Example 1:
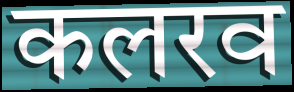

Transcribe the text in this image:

कलरव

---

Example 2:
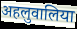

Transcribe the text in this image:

अहलुवालिया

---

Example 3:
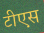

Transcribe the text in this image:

टीएस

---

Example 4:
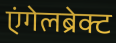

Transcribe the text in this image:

एंगेलब्रेक्ट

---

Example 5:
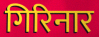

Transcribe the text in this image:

गिरिनार